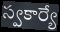
స్వకార్యే